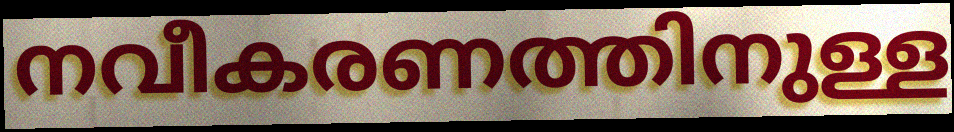
നവീകരണത്തിനുള്ള